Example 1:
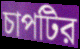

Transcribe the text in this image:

চাপটির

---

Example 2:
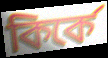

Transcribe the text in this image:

কির্কে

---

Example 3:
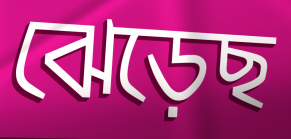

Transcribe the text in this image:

ঝেড়েছ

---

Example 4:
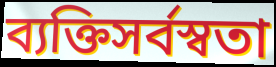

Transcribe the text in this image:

ব্যক্তিসর্বস্বতা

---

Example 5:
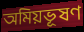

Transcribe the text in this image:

অমিয়ভূষণ